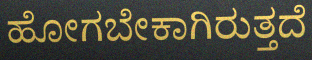
ಹೋಗಬೇಕಾಗಿರುತ್ತದೆ